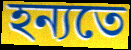
হন্যতে